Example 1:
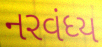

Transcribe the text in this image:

નરવંધ્ય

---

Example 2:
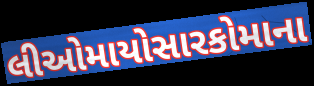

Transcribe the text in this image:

લીઓમાયોસારકોમાના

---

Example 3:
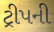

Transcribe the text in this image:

ટ્રીપની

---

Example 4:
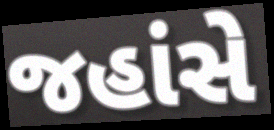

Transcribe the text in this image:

જહાંસે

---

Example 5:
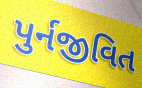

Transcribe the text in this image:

પુર્નજીવિત